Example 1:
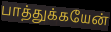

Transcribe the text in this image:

பாத்துக்கயேன்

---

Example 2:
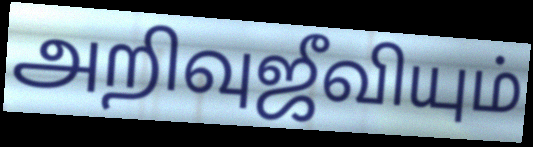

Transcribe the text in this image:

அறிவுஜீவியும்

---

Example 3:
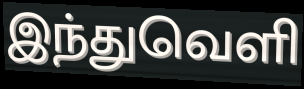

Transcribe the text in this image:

இந்துவெளி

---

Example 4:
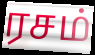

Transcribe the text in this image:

ரசம்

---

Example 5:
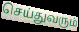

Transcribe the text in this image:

செய்துவரும்